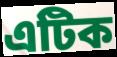
এটিক